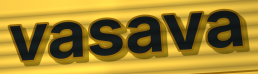
vasava